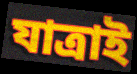
যাত্ৰাই